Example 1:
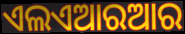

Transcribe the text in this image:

ଏଲଏଆରଆର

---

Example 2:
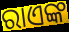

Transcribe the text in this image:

ରାଏଙ୍କ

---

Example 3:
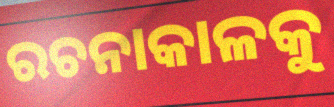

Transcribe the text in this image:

ରଚନାକାଳକୁ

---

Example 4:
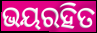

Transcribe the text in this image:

ଭୟରହିତ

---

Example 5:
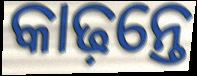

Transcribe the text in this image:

କାଢ଼ନ୍ତେ